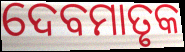
ଦେବମାତୃକ